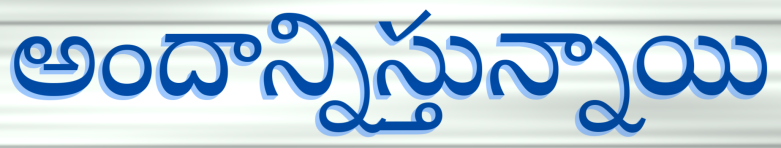
అందాన్నిస్తున్నాయి